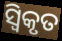
ସ୍ଵିକୃତ